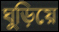
ঘুড়িয়ে